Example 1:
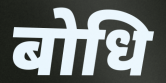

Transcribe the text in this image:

बोधि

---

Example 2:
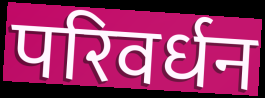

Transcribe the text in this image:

परिवर्धन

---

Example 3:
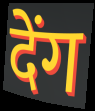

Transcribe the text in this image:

देंग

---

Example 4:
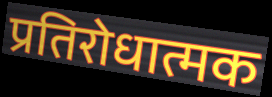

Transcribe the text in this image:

प्रतिरोधात्मक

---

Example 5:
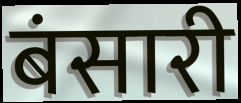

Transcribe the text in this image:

बंसारी